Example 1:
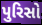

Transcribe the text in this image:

પુરિસો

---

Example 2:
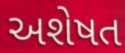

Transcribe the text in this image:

અશેષત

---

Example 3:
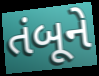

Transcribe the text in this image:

તંબૂને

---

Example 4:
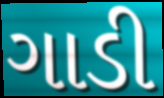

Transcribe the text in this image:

ગાડી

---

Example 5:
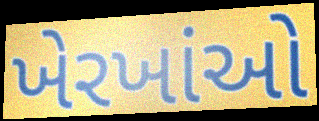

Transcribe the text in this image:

ખેરખાંઓ